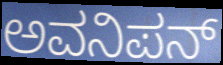
ಅವನಿಪನ್